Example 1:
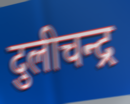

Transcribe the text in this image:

दुलीचन्द्र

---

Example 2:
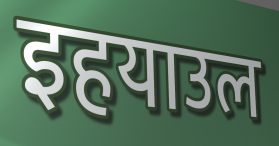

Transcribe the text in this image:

इहयाउल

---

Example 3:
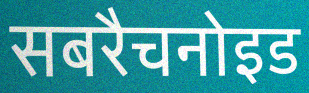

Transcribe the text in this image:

सबरैचनोइड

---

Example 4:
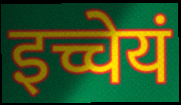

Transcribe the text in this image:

इच्चेयं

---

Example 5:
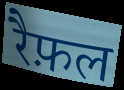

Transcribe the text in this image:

रैफ़ल